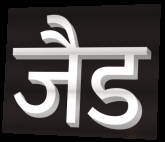
जैड